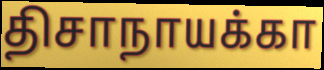
திசாநாயக்கா